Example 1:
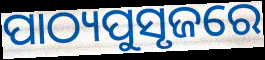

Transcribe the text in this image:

ପାଠ୍ୟପୁସୃଜରେ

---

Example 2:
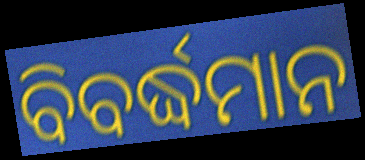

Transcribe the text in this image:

ବିବର୍ଦ୍ଧମାନ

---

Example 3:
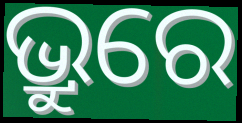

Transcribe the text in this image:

ଭ୍ରୁରେ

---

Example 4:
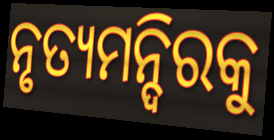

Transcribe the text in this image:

ନୃତ୍ୟମନ୍ଦିରକୁ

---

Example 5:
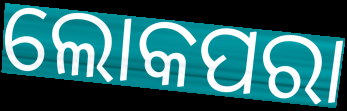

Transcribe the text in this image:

ଲୋକପରା